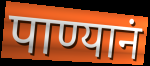
पाण्यानं